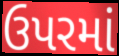
ઉપરમાં